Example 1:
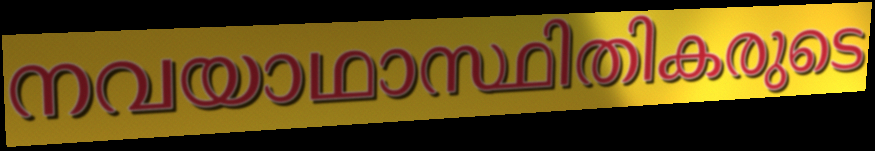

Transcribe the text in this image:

നവയാഥാസ്ഥിതികരുടെ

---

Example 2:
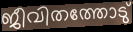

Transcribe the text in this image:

ജീവിതത്തോടു്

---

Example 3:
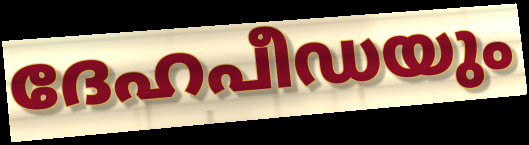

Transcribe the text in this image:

ദേഹപീഡയും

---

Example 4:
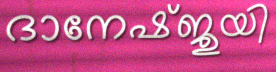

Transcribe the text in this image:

ദാനേഷ്ജുയി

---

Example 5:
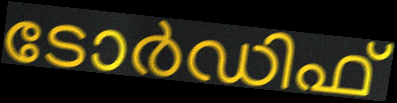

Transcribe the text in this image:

ടോർഡിഫ്